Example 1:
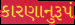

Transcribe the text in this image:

કારણાનુરૂપં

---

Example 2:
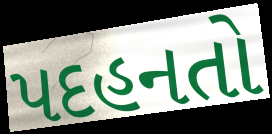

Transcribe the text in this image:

પદહનતો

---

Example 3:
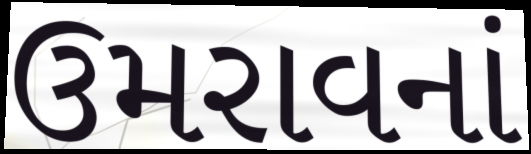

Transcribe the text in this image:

ઉમરાવનાં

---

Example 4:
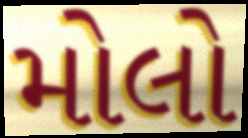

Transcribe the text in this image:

મોલો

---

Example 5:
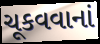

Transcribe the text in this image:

ચૂકવવાનાં